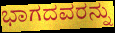
ಭಾಗದವರನ್ನು